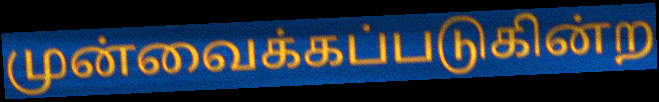
முன்வைக்கப்படுகின்ற